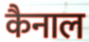
कैनाल